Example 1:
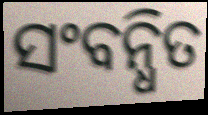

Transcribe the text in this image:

ସଂବନ୍ଧିତ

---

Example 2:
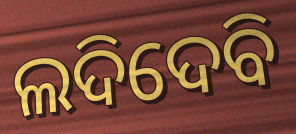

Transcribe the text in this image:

ଲଦିଦେବି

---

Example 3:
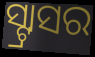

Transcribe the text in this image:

ସ୍ଟ୍ରାସର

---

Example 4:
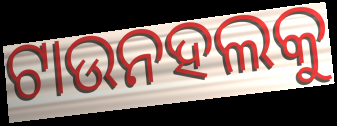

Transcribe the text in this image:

ଟାଉନହଲକୁ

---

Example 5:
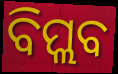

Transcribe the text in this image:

ବିପ୍ଲବ